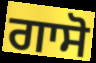
ਗਾਸੋ